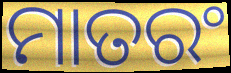
ମାତରଂ